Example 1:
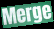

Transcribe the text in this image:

Merge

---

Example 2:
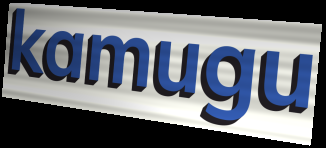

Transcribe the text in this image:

kamugu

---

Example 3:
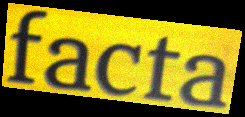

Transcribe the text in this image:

facta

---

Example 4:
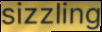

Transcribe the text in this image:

sizzling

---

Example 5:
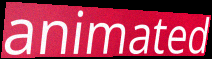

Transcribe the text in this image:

animated